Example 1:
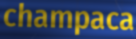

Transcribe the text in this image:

champaca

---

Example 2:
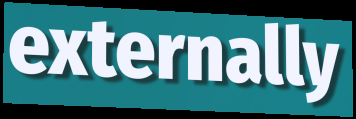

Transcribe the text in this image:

externally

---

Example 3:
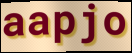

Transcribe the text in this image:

aapjo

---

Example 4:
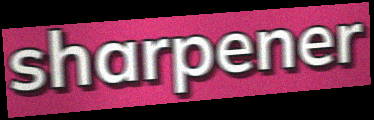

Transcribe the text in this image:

sharpener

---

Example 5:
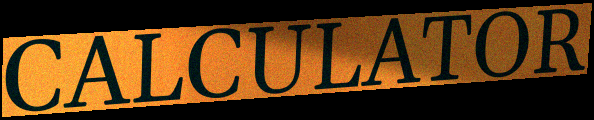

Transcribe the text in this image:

CALCULATOR